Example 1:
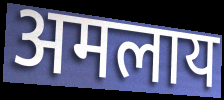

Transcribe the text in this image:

अमलाय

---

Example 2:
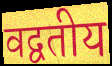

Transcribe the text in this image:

वद्वतीय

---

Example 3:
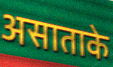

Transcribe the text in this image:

असाताके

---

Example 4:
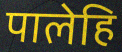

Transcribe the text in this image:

पालेहि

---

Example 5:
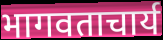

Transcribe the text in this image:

भागवताचार्य